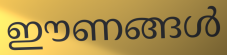
ഈണങ്ങൾ